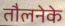
तौलनेके